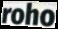
roho